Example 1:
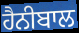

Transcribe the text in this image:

ਹੈਨੀਬਾਲ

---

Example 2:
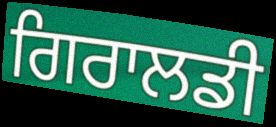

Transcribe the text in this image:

ਗਿਰਾਲਡੀ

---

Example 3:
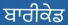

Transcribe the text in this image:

ਬਾਰੀਕੇਡ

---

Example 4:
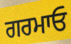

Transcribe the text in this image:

ਗਰਮਾਓ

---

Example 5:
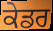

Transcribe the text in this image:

ਕੇਡਰ